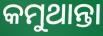
କମୁଥାନ୍ତା